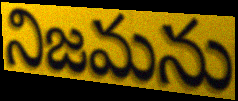
నిజమను